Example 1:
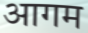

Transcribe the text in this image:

आगम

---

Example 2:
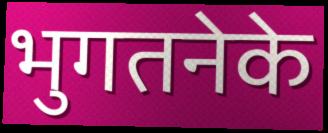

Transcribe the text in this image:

भुगतनेके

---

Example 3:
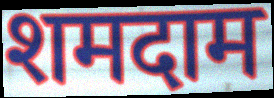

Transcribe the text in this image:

शमदाम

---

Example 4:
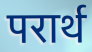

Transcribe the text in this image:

परार्थ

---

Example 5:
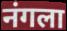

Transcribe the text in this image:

नंगला